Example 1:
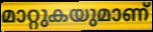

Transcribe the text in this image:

മാറ്റുകയുമാണ്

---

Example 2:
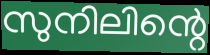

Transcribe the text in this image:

സുനിലിന്റെ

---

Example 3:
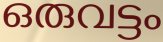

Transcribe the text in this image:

ഒരുവട്ടം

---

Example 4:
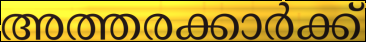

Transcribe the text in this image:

അത്തരക്കാർക്ക്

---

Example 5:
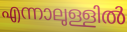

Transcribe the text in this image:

എന്നാലുള്ളിൽ